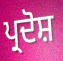
ਪ੍ਰਦੋਸ਼